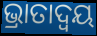
ଭ୍ରାତାଦ୍ୱୟ